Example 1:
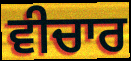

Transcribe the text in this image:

ਵੀਚਾਰ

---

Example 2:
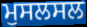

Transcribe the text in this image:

ਮੁਸਲਸਲ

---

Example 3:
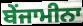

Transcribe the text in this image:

ਬੇਂਜਾਮੀਨਾ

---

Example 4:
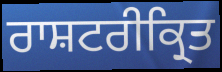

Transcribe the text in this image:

ਰਾਸ਼ਟਰੀਕ੍ਰਿਤ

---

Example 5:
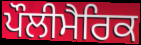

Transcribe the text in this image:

ਪੌਲੀਮੈਰਿਕ